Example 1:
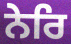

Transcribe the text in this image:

ਨੇਰਿ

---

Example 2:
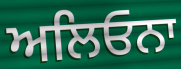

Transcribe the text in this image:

ਅਲਿਓਨਾ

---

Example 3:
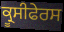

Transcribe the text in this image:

ਕ੍ਰੂਸੀਫੇਰਸ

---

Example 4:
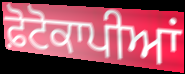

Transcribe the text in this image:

ਫ਼ੋਟੋਕਾਪੀਆਂ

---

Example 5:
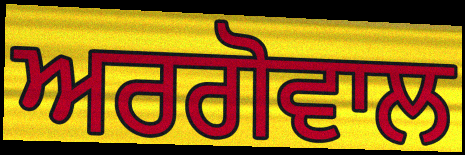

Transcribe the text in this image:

ਅਰਗੋਵਾਲ